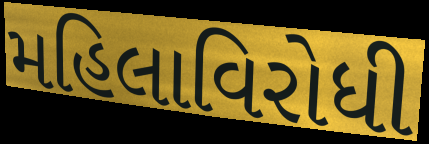
મહિલાવિરોધી